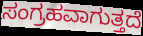
ಸಂಗ್ರಹವಾಗುತ್ತದೆ